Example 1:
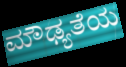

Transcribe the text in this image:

ಮೌಢ್ಯತೆಯ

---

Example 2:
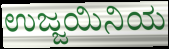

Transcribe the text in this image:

ಉಜ್ಜಯಿನಿಯ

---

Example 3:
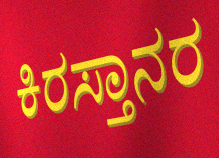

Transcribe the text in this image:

ಕಿರಸ್ತಾನರ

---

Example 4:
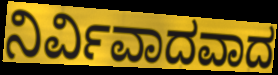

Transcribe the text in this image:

ನಿರ್ವಿವಾದವಾದ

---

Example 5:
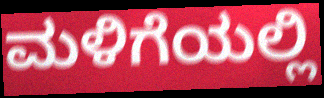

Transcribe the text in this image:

ಮಳಿಗೆಯಲ್ಲಿ